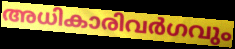
അധികാരിവർഗവും